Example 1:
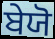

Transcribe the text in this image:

ਬੇਯੋ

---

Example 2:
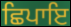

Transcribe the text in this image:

ਛਿਪਾਇ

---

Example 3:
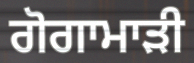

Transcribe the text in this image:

ਗੋਗਾਮਾੜੀ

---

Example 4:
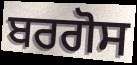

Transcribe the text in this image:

ਬਰਗੋਸ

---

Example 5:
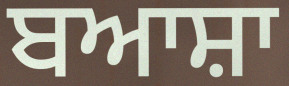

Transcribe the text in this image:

ਬਆਸ਼ਾ